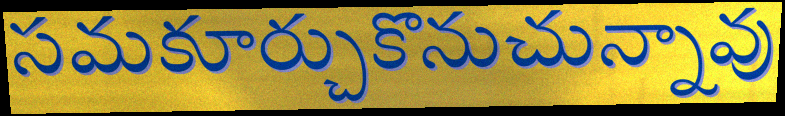
సమకూర్చుకొనుచున్నావు